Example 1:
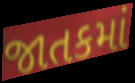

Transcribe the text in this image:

જાતકમાં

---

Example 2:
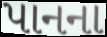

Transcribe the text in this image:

પાનના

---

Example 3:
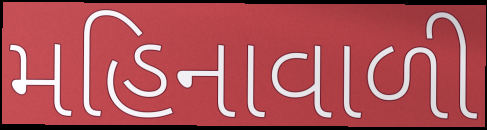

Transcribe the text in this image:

મહિનાવાળી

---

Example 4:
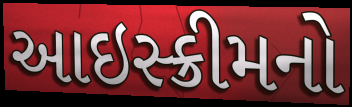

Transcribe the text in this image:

આઇસ્ક્રીમનો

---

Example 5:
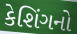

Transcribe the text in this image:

કેશિંગનો